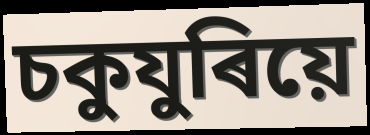
চকুযুৰিয়ে